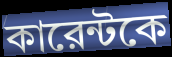
কারেন্টকে